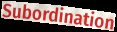
Subordination